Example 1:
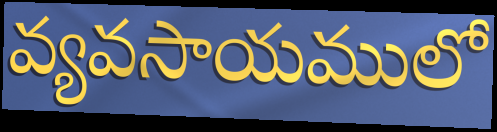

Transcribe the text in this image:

వ్యవసాయములో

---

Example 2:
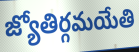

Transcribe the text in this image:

జ్యోతిర్గమయేతి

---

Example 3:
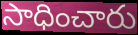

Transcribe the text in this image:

సాధించారు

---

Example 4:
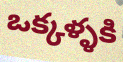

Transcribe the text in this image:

ఒక్కళ్ళకి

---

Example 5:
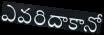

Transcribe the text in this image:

ఎవరిదాకానో